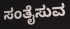
ಸಂತೈಸುವ